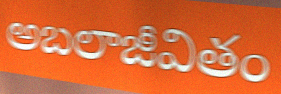
అబలాజీవితం